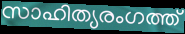
സാഹിത്യരംഗത്ത്